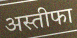
अस्तीफा